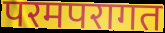
परमपरागत